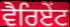
ਵੈਰਿਏਂਟ